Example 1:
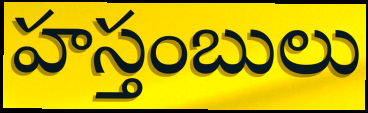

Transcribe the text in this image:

హస్తంబులు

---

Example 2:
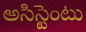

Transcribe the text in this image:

అసిస్టెంటు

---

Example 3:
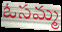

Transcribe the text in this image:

ఓసమ్మ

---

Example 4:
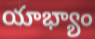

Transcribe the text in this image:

యాభ్యాం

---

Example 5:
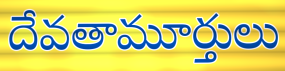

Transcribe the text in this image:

దేవతామూర్తులు